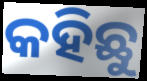
କହିଛୁ